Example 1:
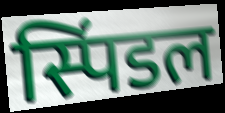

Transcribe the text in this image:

स्पिंडल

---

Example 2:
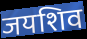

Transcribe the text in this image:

जयशिव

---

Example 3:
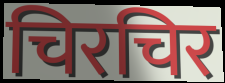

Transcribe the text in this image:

चिरचिर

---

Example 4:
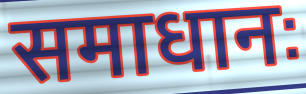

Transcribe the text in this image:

समाधानः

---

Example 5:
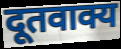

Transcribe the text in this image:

दूतवाक्य